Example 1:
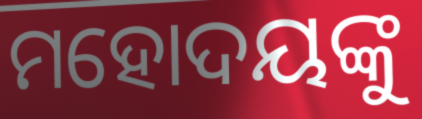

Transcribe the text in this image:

ମହୋଦୟଙ୍କୁ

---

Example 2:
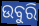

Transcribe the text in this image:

ଉବୁରି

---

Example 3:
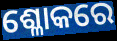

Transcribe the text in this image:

ଶ୍ଳୋକରେ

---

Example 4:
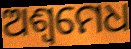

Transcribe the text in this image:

ଅଶ୍ଵମେଧ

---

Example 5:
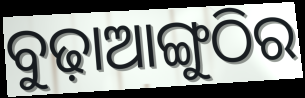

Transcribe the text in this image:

ବୁଢ଼ାଆଙ୍ଗୁଠିର